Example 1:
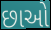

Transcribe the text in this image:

છાઓ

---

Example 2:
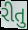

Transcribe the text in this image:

રીતુ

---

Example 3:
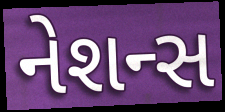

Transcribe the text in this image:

નેશન્સ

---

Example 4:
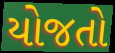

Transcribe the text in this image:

યોજતો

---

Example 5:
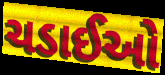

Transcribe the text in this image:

ચડાઈઓ